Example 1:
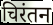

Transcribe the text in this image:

चिरंतन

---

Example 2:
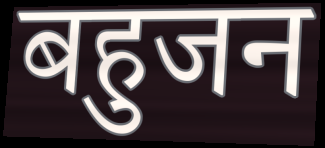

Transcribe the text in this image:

बहुजन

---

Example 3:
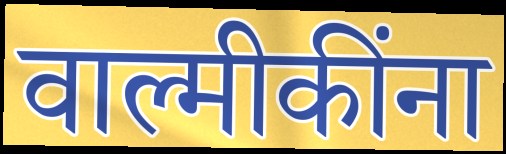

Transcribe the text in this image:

वाल्मीकींना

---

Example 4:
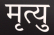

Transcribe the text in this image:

मृत्यु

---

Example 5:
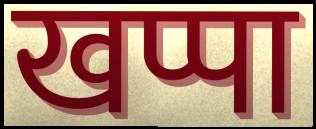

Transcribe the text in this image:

खप्पा